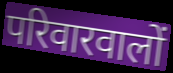
परिवारवालों